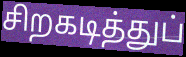
சிறகடித்துப்